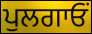
ਪੁਲਗਾਓਂ